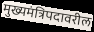
मुख्यमंत्रिपदावरील